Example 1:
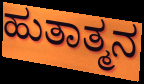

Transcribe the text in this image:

ಹುತಾತ್ಮನ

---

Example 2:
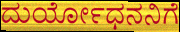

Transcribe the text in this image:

ದುರ್ಯೋಧನನಿಗೆ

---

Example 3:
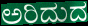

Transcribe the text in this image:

ಅರಿದುದ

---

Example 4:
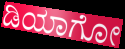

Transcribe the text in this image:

ಡಿಯಾಗೋ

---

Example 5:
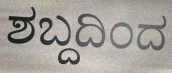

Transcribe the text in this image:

ಶಬ್ದದಿಂದ